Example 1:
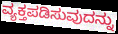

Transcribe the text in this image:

ವ್ಯಕ್ತಪಡಿಸುವುದನ್ನು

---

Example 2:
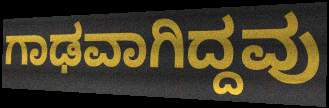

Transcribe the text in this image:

ಗಾಢವಾಗಿದ್ದವು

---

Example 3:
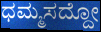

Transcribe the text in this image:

ಧಮ್ಮಸದ್ದೋ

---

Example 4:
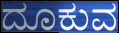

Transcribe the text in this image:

ದೂಕುವ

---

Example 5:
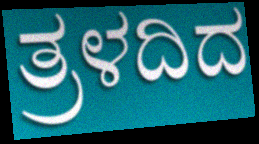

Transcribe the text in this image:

ತ್ರಳದಿದ